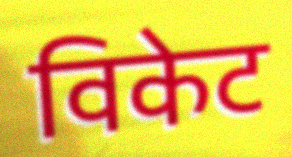
विकेट